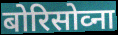
बोरिसोव्ना